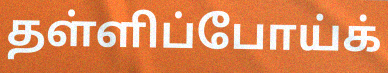
தள்ளிப்போய்க்